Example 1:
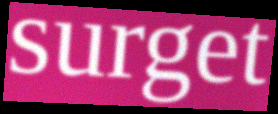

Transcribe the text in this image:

surget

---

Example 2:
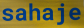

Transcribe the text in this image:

sahaje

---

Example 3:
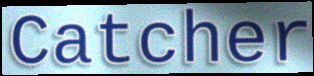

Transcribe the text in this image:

Catcher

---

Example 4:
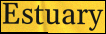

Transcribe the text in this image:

Estuary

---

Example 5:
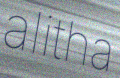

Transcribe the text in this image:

alitha